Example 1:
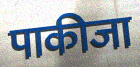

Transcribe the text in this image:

पाकीजा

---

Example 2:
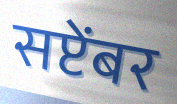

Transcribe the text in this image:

सप्टेंबर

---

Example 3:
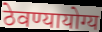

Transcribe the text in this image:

ठेवण्यायोग्य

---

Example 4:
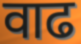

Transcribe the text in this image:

वाढ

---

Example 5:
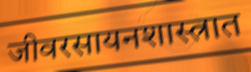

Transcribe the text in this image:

जीवरसायनशास्त्रात